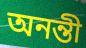
অনন্তী